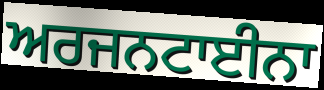
ਅਰਜਨਟਾਈਨਾ